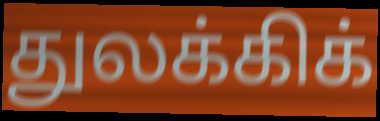
துலக்கிக்